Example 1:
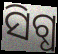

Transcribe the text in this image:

ସିଗ୍ଧ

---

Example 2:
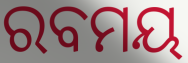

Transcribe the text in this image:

ରବମୟ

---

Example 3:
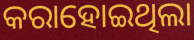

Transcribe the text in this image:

କରାହୋଇଥିଲା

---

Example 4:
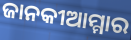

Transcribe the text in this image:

ଜାନକୀଆମ୍ମାର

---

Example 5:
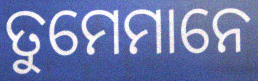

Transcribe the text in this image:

ତୁମେମାନେ